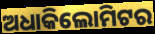
ଅଧାକିଲୋମିଟର